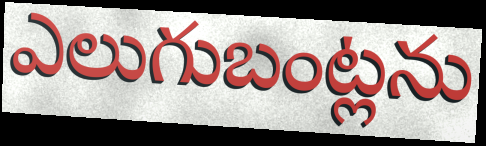
ఎలుగుబంట్లను